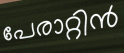
പേരാറ്റിൻ